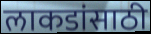
लाकडांसाठी